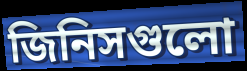
জিনিসগুলো